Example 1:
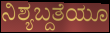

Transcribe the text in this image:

ನಿಶ್ಯಬ್ದತೆಯೂ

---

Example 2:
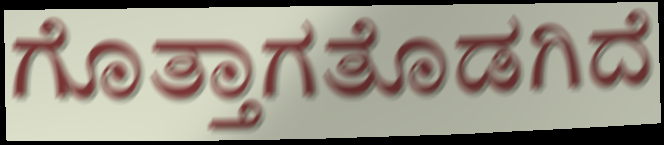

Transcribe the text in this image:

ಗೊತ್ತಾಗತೊಡಗಿದೆ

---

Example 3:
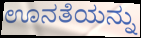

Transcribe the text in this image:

ಊನತೆಯನ್ನು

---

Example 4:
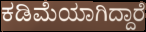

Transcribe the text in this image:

ಕಡಿಮೆಯಾಗಿದ್ದಾರೆ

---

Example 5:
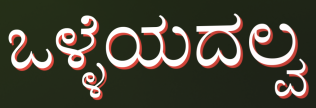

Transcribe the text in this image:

ಒಳ್ಳೆಯದಲ್ವ